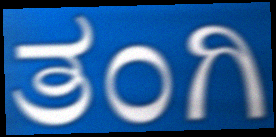
ತಂಗಿ